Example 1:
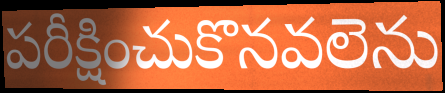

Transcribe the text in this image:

పరీక్షించుకొనవలెను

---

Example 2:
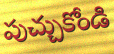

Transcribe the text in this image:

పుచ్చుకోండి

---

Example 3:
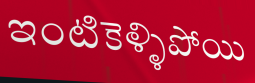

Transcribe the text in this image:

ఇంటికెళ్ళిపోయి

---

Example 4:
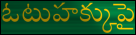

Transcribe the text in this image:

ఓటుహక్కుపై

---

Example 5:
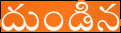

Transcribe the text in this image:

దుండిన